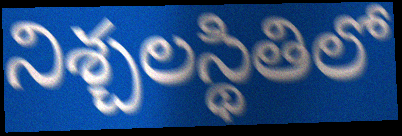
నిశ్చలస్థితిలో